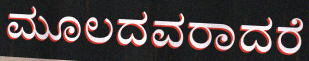
ಮೂಲದವರಾದರೆ